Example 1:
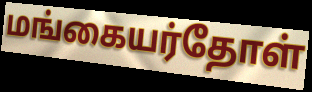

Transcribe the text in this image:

மங்கையர்தோள்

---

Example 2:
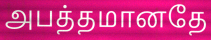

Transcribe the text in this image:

அபத்தமானதே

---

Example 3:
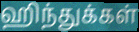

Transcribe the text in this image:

ஹிந்துக்கள்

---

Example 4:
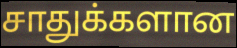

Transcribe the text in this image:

சாதுக்களான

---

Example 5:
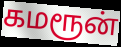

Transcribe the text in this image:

கமரூன்